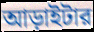
আড়াইটার